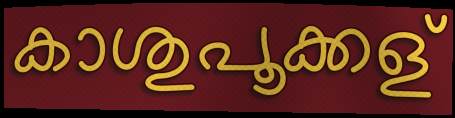
കാശുപൂക്കള്